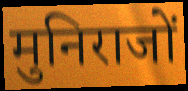
मुनिराजों